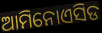
ଆମିନୋଏସିଡ